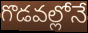
గొడవల్లోనే